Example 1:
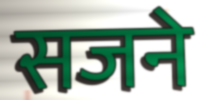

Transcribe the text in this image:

सजने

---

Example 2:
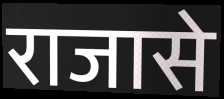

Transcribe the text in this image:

राजासे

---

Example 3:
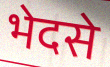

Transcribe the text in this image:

भेदसे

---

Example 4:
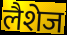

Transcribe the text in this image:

लैशेज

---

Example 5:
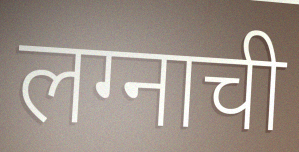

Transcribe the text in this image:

लग्नाची